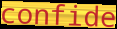
confide